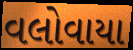
વલોવાયા